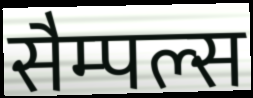
सैम्‍पल्‍स